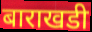
बाराखडी